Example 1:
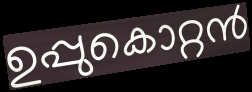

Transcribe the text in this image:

ഉപ്പുകൊറ്റൻ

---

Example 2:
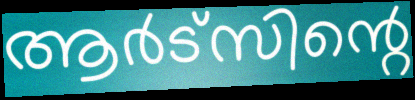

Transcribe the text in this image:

ആർട്സിന്റെ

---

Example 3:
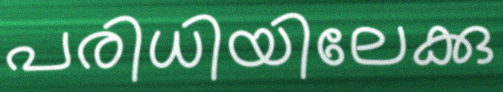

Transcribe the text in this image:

പരിധിയിലേക്കു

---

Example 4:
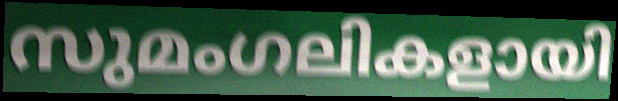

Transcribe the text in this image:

സുമംഗലികളായി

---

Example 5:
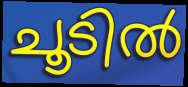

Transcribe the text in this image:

ചൂടിൽ